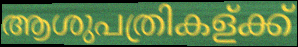
ആശുപത്രികള്ക്ക്